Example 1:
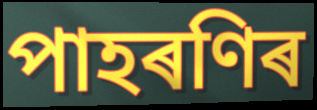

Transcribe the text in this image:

পাহৰণিৰ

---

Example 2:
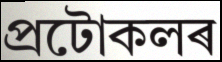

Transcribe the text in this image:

প্ৰটোকলৰ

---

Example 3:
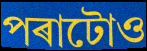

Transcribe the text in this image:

পৰাটোও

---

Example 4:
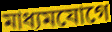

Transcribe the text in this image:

মাধ্যমযোগে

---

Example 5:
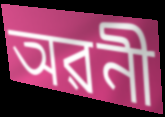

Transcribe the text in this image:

অৱনী